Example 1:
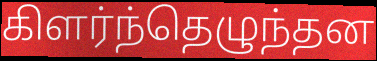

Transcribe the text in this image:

கிளர்ந்தெழுந்தன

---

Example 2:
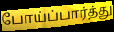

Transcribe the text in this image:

போய்ப்பார்த்து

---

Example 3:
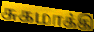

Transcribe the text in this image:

சுகமாக்கி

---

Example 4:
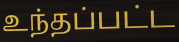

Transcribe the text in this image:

உந்தப்பட்ட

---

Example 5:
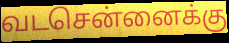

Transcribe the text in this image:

வடசென்னைக்கு